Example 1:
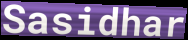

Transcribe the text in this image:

Sasidhar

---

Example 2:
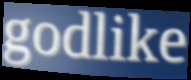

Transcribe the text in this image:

godlike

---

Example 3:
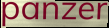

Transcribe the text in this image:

panzer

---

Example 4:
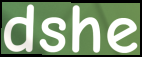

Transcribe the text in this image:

dshe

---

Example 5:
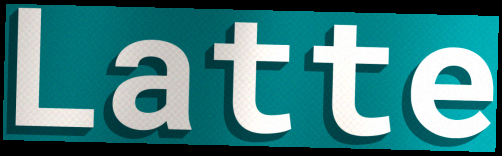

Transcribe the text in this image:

Latte